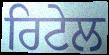
ਰਿਟੇਲ